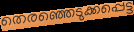
തെരഞ്ഞെടുക്കപ്പെട്ട